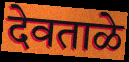
देवताळे